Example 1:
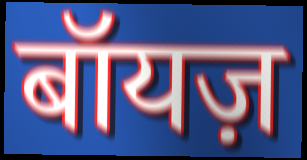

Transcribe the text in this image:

बॉयज़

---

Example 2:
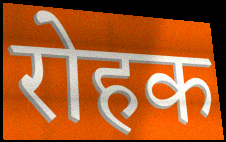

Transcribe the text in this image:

रोहक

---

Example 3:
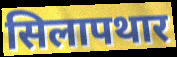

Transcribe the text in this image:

सिलापथार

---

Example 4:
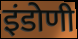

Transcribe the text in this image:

इंडोणी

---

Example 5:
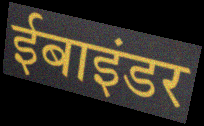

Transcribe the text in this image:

ईबाइंडर